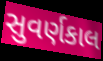
સુવર્ણકાલ